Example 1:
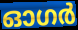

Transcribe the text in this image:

ഓഗർ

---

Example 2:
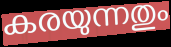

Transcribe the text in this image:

കരയുന്നതും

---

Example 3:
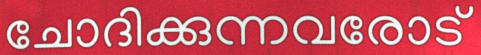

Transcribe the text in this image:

ചോദിക്കുന്നവരോട്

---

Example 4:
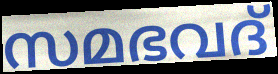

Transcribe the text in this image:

സമഭവദ്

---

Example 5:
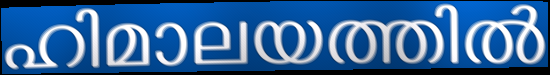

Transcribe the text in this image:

ഹിമാലയത്തിൽ